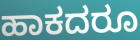
ಹಾಕದರೂ